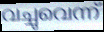
വച്ചുവെന്ന്